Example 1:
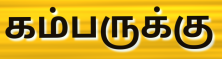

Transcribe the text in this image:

கம்பருக்கு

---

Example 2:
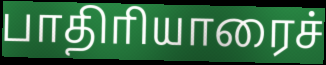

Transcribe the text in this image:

பாதிரியாரைச்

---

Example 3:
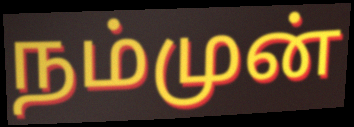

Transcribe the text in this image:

நம்முன்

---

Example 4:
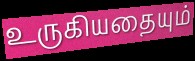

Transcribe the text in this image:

உருகியதையும்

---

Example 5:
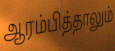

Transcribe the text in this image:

ஆரம்பித்தாலும்